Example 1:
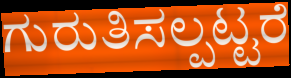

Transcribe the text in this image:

ಗುರುತಿಸಲ್ಪಟ್ಟರೆ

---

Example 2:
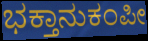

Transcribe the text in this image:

ಭಕ್ತಾನುಕಂಪೀ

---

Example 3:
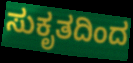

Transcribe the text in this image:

ಸುಕೃತದಿಂದ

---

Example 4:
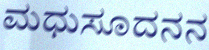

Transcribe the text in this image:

ಮಧುಸೂದನನ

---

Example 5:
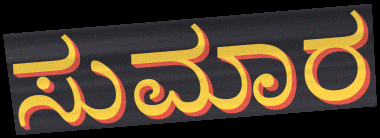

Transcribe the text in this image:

ಸುಮಾರ